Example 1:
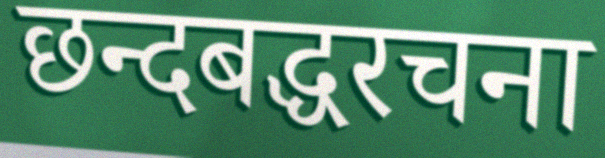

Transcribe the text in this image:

छन्दबद्धरचना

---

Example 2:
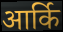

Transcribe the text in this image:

आर्कि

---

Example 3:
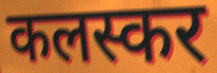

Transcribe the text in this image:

कलस्कर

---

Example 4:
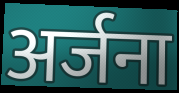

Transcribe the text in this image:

अर्जना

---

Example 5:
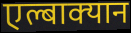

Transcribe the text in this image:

एल्बाक्यान